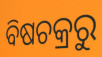
ବିଷଚକ୍ରରୁ